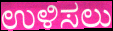
ಉಳಿಸಲು